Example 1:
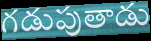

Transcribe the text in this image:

గడుపుతాడు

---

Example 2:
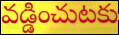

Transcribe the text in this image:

వడ్డించుటకు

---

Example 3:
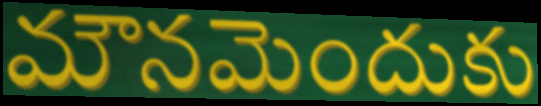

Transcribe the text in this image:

మౌనమెందుకు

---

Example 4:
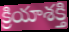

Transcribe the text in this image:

క్రియాశక్తి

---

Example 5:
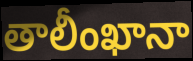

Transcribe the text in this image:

తాలీంఖానా